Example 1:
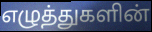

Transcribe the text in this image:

எழுத்துகளின்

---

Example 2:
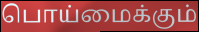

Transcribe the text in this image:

பொய்மைக்கும்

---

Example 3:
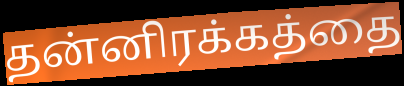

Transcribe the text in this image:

தன்னிரக்கத்தை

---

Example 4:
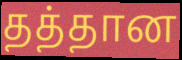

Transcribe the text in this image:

தத்தான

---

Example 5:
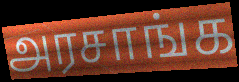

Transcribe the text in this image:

அரசாங்க